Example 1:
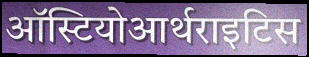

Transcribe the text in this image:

ऑस्टियोआर्थराइटिस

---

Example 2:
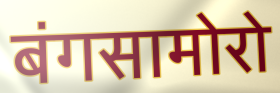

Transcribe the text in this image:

बंगसामोरो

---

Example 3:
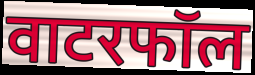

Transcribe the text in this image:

वाटरफॉल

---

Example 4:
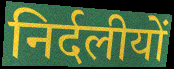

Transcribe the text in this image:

निर्दलीयों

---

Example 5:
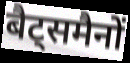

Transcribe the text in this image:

बैट्समैनों